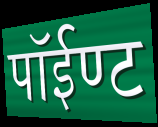
पॉईण्ट